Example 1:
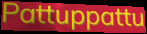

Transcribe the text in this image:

Pattuppattu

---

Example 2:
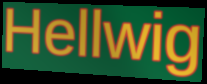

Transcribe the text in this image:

Hellwig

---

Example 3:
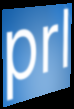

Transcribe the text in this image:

prl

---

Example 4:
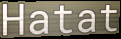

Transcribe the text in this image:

Hatat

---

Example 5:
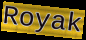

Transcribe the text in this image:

Royak